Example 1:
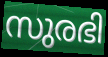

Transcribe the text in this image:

സുരഭി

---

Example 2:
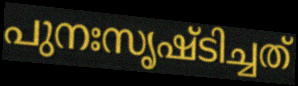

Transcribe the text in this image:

പുനഃസൃഷ്ടിച്ചത്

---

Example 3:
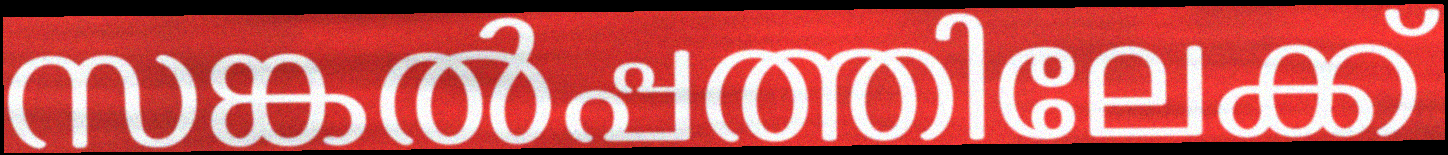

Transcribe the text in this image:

സങ്കൽപ്പത്തിലേക്ക്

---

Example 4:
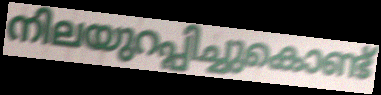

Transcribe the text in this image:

നിലയുറപ്പിച്ചുകൊണ്ട്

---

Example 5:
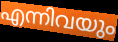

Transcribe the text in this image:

എന്നിവയും